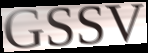
GSSV